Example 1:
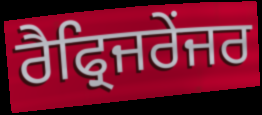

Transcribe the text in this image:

ਰੈਫ੍ਰਿਜਰੇਂਜਰ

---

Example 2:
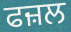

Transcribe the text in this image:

ਫਜ਼ਲ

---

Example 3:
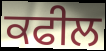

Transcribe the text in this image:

ਕਫੀਲ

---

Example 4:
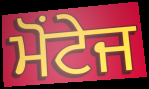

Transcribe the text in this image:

ਮੋਂਟੇਜ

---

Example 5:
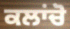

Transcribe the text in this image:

ਕਲਾਂਚੋ